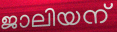
ജാലിയന്